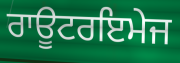
ਰਾਊਟਰਇਮੇਜ